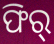
ଫିର୍